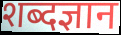
शब्दज्ञान